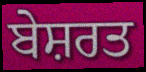
ਬੇਸ਼ਰਤ